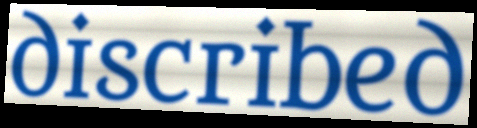
discribed